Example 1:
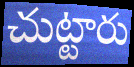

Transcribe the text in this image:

చుట్టారు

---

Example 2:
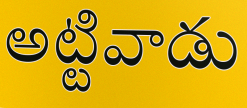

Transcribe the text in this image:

అట్టివాడు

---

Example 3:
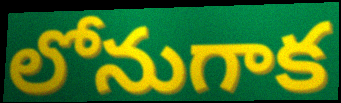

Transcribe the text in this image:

లోనుగాక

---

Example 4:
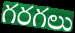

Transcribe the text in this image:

గరగలు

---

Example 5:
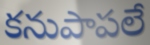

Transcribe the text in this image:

కనుపాపలే